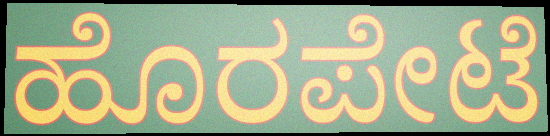
ಹೊರಪೇಟೆ